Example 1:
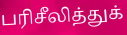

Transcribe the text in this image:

பரிசீலித்துக்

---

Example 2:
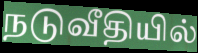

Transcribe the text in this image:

நடுவீதியில்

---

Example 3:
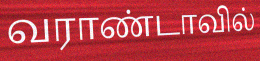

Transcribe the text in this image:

வராண்டாவில்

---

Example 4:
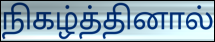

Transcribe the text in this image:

நிகழ்த்தினால்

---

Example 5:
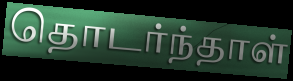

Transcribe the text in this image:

தொடர்ந்தாள்